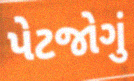
પેટજોગું